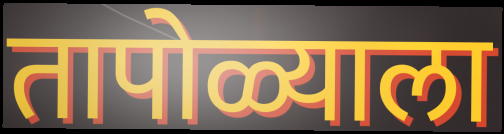
तापोळ्याला